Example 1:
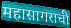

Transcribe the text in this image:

महासागराची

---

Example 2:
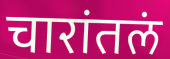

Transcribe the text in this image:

चारांतलं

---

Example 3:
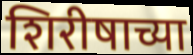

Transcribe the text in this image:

शिरीषाच्या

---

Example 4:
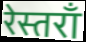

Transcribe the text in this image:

रेस्तराँ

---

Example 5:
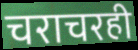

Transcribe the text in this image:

चराचरही